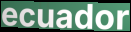
ecuador